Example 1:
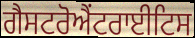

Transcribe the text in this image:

ਗੈਸਟਰੋਐਂਟਰਾਈਟਿਸ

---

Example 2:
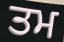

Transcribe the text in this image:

ਤਮ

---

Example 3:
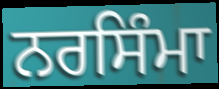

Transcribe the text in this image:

ਨਰਸਿੰਮਾ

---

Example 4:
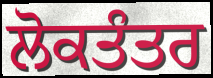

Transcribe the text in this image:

ਲੋਕਤੰਤਰ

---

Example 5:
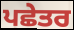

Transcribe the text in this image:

ਪਛੇਤਰ